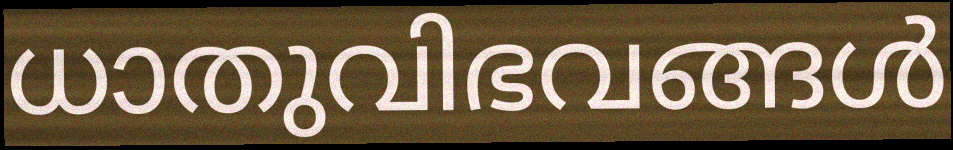
ധാതുവിഭവങ്ങൾ